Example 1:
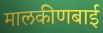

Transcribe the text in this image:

मालकीणबाई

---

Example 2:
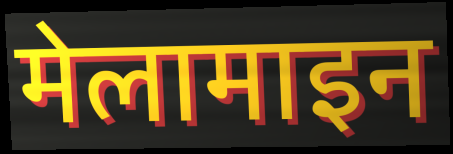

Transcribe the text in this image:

मेलामाइन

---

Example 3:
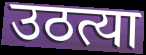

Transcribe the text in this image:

उठत्या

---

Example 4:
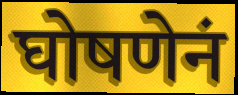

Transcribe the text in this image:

घोषणेनं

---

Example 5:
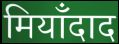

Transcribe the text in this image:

मियाँदाद